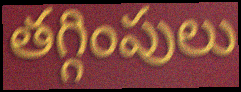
తగ్గింపులు